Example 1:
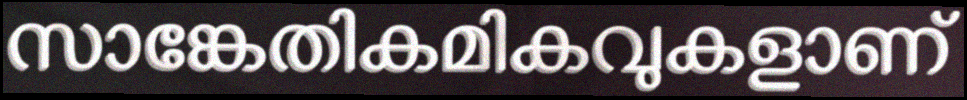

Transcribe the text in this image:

സാങ്കേതികമികവുകളാണ്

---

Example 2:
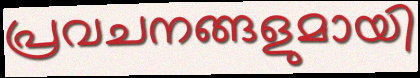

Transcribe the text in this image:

പ്രവചനങ്ങളുമായി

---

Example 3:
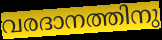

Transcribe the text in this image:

വരദാനത്തിനു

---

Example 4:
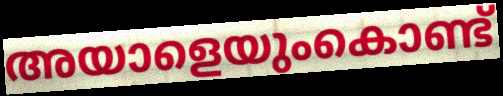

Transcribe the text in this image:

അയാളെയുംകൊണ്ട്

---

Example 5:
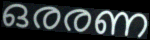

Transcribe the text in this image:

ഒരരണ